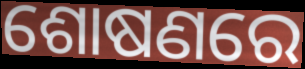
ଶୋଷଣରେ